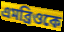
এমব্রিওকে